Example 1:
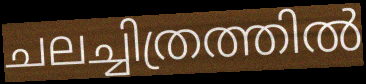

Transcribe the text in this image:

ചലച്ചിത്രത്തിൽ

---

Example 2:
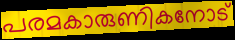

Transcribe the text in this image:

പരമകാരുണികനോട്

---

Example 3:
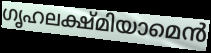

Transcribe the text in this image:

ഗൃഹലക്ഷ്മിയാമെൻ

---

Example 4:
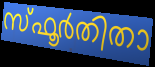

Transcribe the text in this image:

സ്ഫൂർതിതാ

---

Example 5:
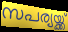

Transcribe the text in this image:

സപര്യയ്ക്ക്